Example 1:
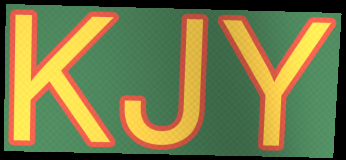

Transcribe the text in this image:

KJY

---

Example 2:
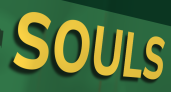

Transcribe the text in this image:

SOULS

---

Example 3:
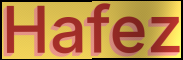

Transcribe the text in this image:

Hafez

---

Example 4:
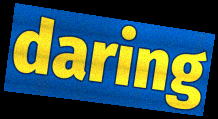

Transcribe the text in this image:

daring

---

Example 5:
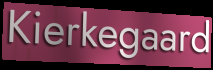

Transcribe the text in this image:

Kierkegaard